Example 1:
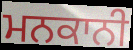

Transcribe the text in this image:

ਮਨਕਾਨੀ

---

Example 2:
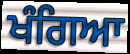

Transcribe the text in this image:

ਖੰਗਿਆ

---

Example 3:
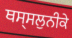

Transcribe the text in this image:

ਥਸ੍ਸਲੁਨੀਕੇ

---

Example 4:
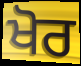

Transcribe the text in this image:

ਖੋਰ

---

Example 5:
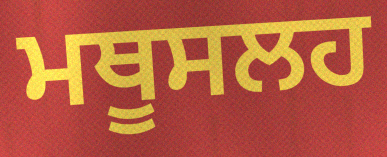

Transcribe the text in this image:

ਮਥੂਸਲਹ